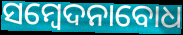
ସମ୍ବେଦନାବୋଧ